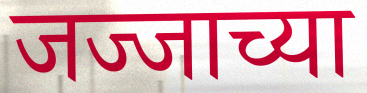
जज्जाच्या